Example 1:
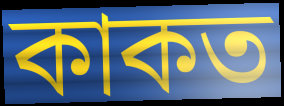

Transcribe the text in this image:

কাকত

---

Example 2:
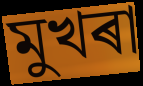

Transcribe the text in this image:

মুখৰা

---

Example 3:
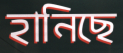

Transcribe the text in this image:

হানিছে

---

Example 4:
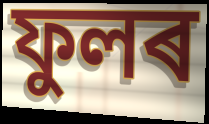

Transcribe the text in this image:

ফুলৰ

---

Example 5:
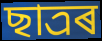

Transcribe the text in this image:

ছাত্ৰৰ